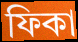
ফিকা